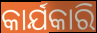
କାର୍ଯକାରି